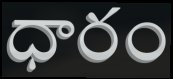
ధారం